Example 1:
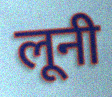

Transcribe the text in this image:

लूनी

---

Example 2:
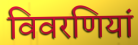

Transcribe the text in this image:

विवरणियां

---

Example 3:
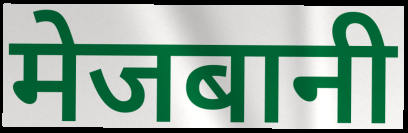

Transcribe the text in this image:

मेजबानी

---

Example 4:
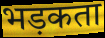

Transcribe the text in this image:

भड़कता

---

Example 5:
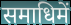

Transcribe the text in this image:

समाधिमें